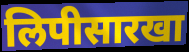
लिपीसारखा